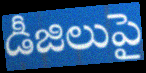
డీజిలుపై